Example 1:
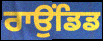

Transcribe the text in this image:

ਰਾਉਂਡਿਡ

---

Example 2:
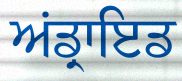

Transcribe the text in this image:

ਅਂਡ੍ਰਾਇਡ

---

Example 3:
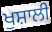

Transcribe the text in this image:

ਖੁਸ਼ਾਲੀ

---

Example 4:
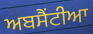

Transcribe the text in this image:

ਅਬਸੈਂਟੀਆ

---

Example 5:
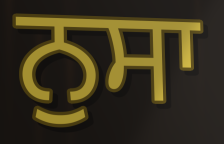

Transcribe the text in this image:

ਨੁਸਾ